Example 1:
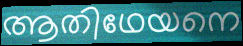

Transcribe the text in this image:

ആതിഥേയനെ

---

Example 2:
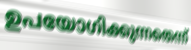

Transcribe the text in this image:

ഉപയോഗിക്കുന്നതെന്ന്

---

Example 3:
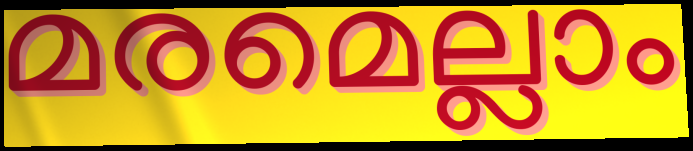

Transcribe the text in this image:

മരമെല്ലാം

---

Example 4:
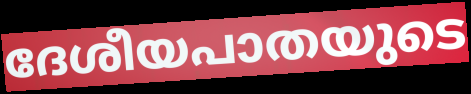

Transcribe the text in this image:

ദേശീയപാതയുടെ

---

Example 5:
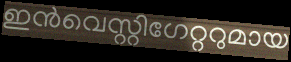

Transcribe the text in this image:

ഇൻവെസ്റ്റിഗേറ്ററുമായ